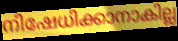
നിഷേധിക്കാനാകില്ല